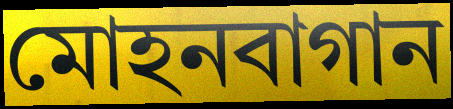
মোহনবাগান